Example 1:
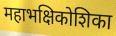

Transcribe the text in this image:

महाभक्षिकोशिका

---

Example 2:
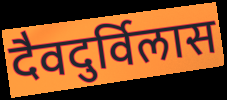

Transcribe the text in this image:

दैवदुर्विलास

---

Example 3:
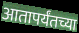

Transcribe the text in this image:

आतापर्यंतच्या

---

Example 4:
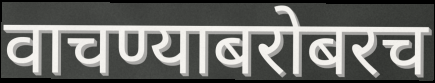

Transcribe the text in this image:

वाचण्याबरोबरच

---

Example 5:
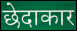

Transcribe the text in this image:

छेदाकार